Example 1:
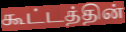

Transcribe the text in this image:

கூட்டத்தின்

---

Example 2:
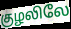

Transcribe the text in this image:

குழலிலே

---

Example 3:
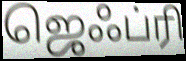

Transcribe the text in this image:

ஜெஃப்ரி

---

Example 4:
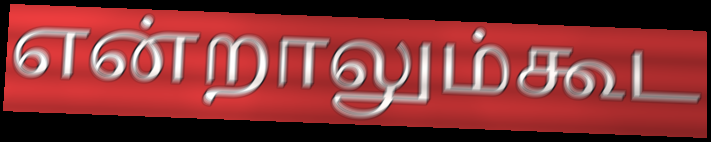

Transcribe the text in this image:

என்றாலும்கூட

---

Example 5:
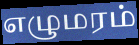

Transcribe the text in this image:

எழுமரம்